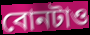
বোনটাও